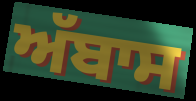
ਅੱਬਾਸ